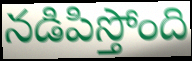
నడిపిస్తోంది